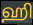
ஹி